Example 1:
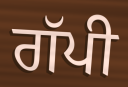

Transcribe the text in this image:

ਗੱਪੀ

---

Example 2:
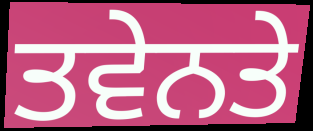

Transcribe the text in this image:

ਤਵੇਨਤੇ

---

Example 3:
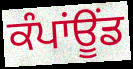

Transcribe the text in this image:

ਕੰਪਾਂਊਂਡ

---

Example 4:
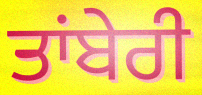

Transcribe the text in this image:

ਤਾਂਬੇਰੀ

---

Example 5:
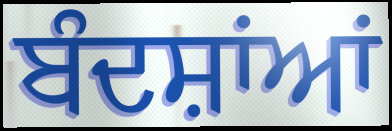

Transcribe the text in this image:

ਬੰਦਸ਼ਾਂਆਂ